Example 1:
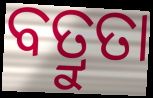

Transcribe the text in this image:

ବତ୍ରୁତା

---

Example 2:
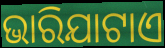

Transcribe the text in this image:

ଭାରିଯାଟାଏ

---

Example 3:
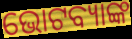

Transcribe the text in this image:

ଭୋଟବ୍ୟାଙ୍କ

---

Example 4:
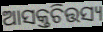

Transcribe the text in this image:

ଆସକ୍ତଚିତ୍ତସ୍ୟ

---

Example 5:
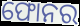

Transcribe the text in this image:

ଫୋନର